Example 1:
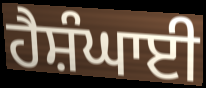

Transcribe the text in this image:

ਹੈਸ਼ੰਘਾਈ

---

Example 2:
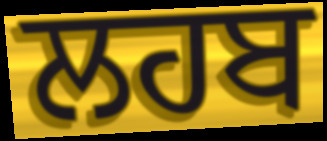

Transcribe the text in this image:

ਲਹਬ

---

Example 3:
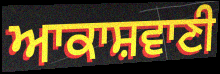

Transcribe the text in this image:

ਆਕਾਸ਼ਵਾਣੀ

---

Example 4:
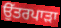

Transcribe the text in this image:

ਉੱਤਰਪਾੜਾ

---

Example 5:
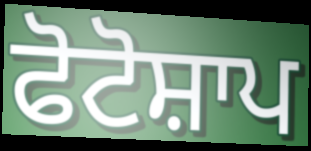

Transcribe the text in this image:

ਫੋਟੋਸ਼ਾਪ